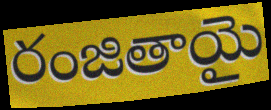
రంజితాయై